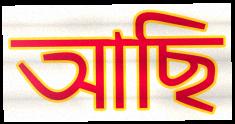
আছি